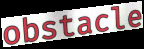
obstacle